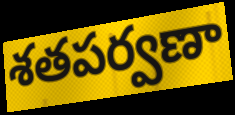
శతపర్వణా